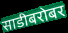
साडीबरोबर